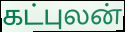
கட்புலன்